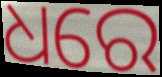
ଧରେ